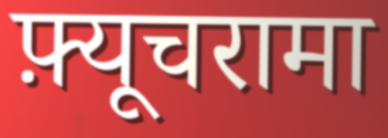
फ़्यूचरामा